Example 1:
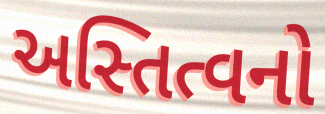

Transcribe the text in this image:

અસ્તિત્વનો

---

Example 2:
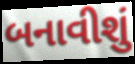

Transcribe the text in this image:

બનાવીશું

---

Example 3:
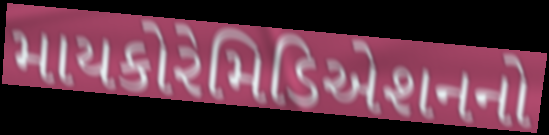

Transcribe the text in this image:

માયકોરેમિડિએશનનો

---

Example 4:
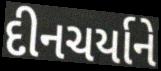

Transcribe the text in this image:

દીનચર્યાને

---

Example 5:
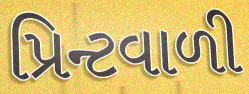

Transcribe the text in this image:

પ્રિન્ટવાળી